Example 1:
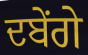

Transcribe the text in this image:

ਦਬੇਂਗੇ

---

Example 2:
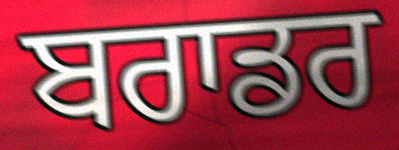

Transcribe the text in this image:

ਬਰਾਡਰ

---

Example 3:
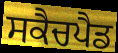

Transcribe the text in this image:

ਸਕੈਚਪੈਡ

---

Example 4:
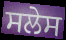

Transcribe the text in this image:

ਸਲੇਸ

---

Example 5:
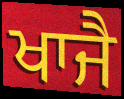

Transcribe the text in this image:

ਖਾਜੈ